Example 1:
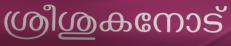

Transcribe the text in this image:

ശ്രീശുകനോട്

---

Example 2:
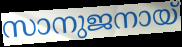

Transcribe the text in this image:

സാനുജനായ്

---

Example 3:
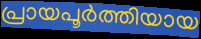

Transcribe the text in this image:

പ്രായപൂർത്തിയായ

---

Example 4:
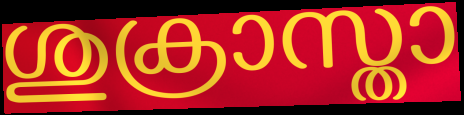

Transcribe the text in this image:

ശുക്രാസ്താ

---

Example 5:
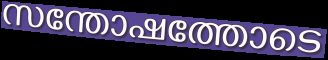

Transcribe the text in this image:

സന്തോഷത്തോടെ